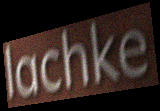
lachke